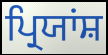
ਪ੍ਰਿਯਾਂਸ਼